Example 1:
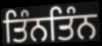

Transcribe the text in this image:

ਤਿੰਨਤਿੰਨ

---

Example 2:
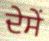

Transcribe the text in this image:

ਦੇਸੇਂ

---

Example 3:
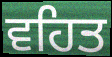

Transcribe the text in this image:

ਵਹਿਤ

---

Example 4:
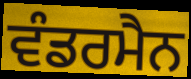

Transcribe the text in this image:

ਵੰਡਰਮੈਨ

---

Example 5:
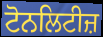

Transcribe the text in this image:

ਟੋਨਲਿਟੀਜ਼